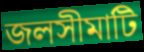
জলসীমাটি